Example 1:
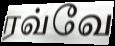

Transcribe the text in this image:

ரவ்வே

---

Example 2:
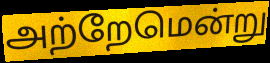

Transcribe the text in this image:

அற்றேமென்று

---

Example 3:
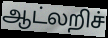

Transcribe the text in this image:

ஆட்லறிச்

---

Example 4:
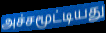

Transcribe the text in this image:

அச்சமூட்டியது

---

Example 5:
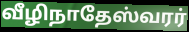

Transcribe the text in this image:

வீழிநாதேஸ்வரர்